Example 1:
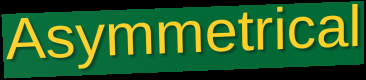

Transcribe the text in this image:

Asymmetrical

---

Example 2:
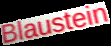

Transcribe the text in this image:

Blaustein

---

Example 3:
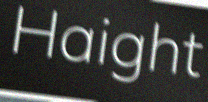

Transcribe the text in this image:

Haight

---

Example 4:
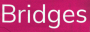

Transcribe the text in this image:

Bridges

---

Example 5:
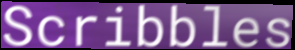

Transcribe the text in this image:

Scribbles